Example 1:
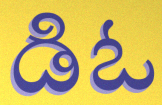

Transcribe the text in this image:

డిఓ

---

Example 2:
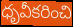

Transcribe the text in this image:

ధృవీకరించి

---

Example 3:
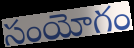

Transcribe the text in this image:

సంయోగం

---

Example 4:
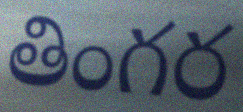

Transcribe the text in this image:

తింగర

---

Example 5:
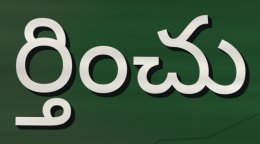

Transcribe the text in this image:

ర్తించు